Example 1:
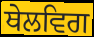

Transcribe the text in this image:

ਥੇਲਵਿਗ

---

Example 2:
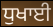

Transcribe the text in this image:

ਧੁਖਾਈ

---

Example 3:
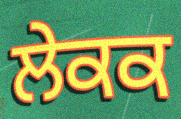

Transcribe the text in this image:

ਲੇਕਕ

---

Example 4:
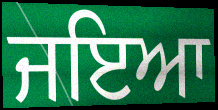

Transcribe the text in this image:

ਜਇਆ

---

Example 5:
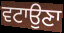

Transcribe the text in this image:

ਵਟਾਉਣਾ